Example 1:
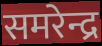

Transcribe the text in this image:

समरेन्द्र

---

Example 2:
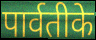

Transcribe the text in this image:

पार्वतीके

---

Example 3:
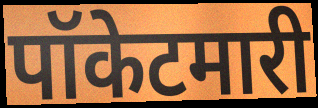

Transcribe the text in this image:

पॉकेटमारी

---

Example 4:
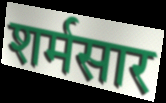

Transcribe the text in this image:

शर्मसार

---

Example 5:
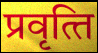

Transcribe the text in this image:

प्रवृत्‍ति